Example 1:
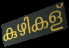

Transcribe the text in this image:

കുഴികള്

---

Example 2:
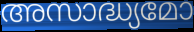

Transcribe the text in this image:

അസാദ്ധ്യമോ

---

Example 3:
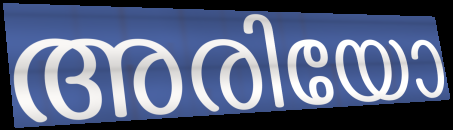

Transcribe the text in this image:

അരിയോ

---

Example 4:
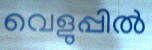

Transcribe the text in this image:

വെളുപ്പിൽ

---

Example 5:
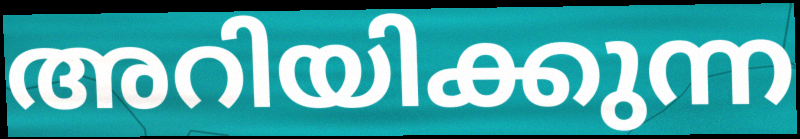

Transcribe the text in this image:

അറിയിക്കുന്ന